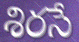
శిరసే